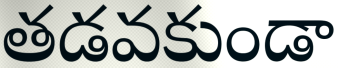
తడవకుండా